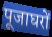
पूजाघरों